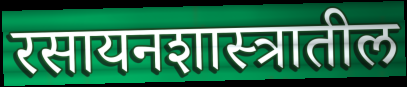
रसायनशास्त्रातील